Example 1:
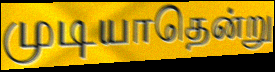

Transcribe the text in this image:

முடியாதென்று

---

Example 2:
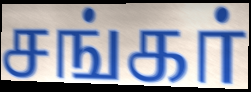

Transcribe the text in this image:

சங்கர்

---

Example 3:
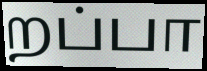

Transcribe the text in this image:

றப்பா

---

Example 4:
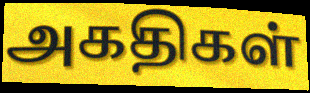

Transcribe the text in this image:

அகதிகள்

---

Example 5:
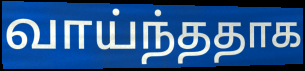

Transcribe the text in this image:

வாய்ந்ததாக